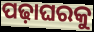
ପଢ଼ାଘରକୁ